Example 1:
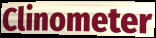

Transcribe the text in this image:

Clinometer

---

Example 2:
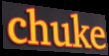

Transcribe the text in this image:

chuke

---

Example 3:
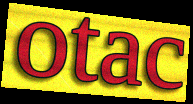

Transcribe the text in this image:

otac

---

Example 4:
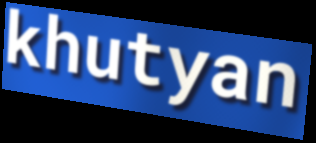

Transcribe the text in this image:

khutyan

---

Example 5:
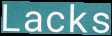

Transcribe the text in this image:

Lacks